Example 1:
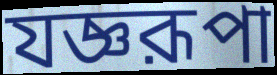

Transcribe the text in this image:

যজ্ঞরূপা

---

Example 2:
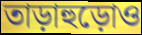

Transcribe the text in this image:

তাড়াহুড়োও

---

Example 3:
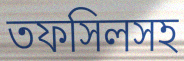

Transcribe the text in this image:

তফসিলসহ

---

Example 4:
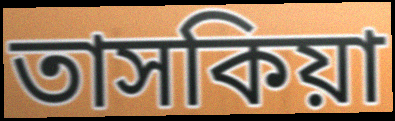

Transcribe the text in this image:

তাসকিয়া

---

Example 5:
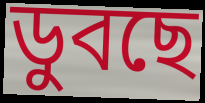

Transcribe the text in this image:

ডুবছে